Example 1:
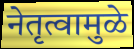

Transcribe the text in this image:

नेतृत्वामुळे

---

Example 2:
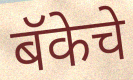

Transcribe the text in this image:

बॅकेचे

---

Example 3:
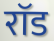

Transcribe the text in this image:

रॉड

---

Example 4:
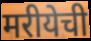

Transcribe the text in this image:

मरीयेची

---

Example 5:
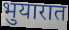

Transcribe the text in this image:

भुयारात